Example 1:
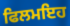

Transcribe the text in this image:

ਫਿਲਮਇਹ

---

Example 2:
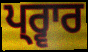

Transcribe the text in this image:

ਪ੍ਰ੍ਵਾਰ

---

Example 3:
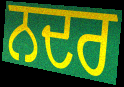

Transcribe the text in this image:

ਨਦਰ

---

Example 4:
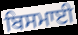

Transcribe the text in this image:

ਬਿਸਮਾਈ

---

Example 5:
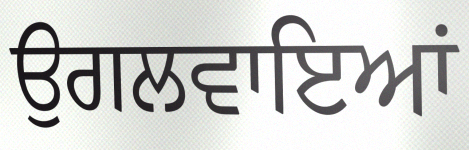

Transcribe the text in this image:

ਉਗਲਵਾਇਆਂ